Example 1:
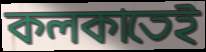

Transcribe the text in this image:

কলকাতেই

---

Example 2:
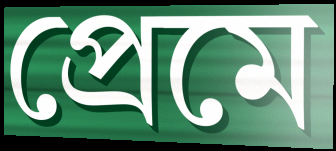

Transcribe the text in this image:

প্রেমে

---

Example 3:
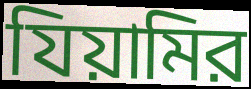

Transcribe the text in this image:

যিয়ামির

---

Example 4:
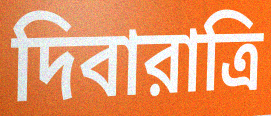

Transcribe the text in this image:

দিবারাত্রি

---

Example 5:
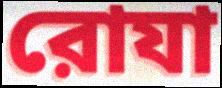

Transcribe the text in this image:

রোযা